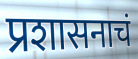
प्रशासनाचं